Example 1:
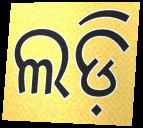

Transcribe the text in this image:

ଲଡ଼ି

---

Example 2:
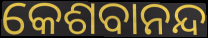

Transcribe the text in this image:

କେଶବାନନ୍ଦ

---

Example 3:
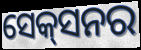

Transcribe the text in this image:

ସେକ୍‍ସନର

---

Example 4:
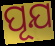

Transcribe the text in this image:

ପୂଯ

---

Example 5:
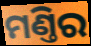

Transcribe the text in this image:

ମଣ୍ତିର